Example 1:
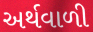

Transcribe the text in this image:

અર્થવાળી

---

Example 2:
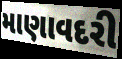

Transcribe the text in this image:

માણાવદરી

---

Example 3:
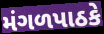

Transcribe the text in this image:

મંગળપાઠકે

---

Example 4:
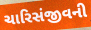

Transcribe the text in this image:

ચારિસંજીવની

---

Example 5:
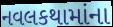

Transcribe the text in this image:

નવલકથામાંના